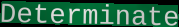
Determinate